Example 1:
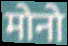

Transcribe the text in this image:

मोनो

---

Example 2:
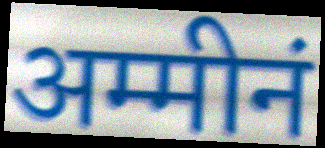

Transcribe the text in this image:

अम्मीनं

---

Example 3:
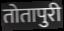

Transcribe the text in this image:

तोतापुरी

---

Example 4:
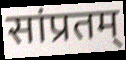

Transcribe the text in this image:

सांप्रतम्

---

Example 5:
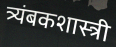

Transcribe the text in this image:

त्र्यंबकशास्त्री